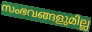
സംഭവങ്ങളുമില്ല